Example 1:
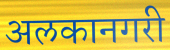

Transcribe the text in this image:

अलकानगरी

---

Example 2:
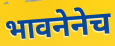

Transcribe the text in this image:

भावनेनेच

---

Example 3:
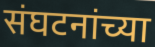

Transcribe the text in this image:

संघटनांच्या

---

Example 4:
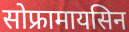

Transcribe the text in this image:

सोफ्रामायसिन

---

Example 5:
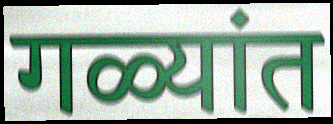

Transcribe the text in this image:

गळ्यांत